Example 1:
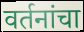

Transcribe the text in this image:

वर्तनांचा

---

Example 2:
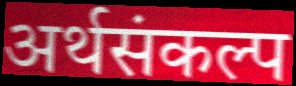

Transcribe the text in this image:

अर्थसंकल्प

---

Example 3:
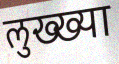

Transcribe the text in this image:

लुख्ख्या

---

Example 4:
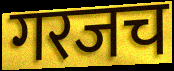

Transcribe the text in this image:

गरजच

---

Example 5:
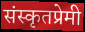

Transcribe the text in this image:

संस्कृतप्रेमी